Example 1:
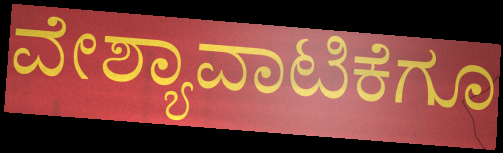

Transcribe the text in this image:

ವೇಶ್ಯಾವಾಟಿಕೆಗೂ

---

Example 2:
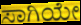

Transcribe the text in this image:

ಸಾಗಿಯೇ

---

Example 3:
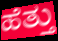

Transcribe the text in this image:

ಹೆತ್ತು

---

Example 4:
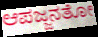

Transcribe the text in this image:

ಆಪಜ್ಜನತೋ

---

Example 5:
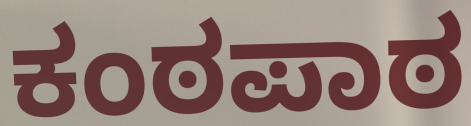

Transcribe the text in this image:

ಕಂಠಪಾಠ